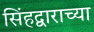
सिंहद्वाराच्या